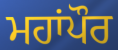
ਮਹਾਂਪੌਰ